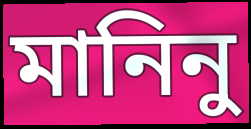
মানিনু